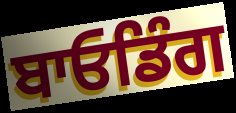
ਬਾਓਡਿੰਗ